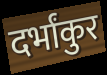
दर्भांकुर